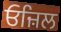
ਓਜ਼ਿਲ